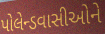
પોલેન્ડવાસીઓને